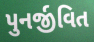
પુનર્જીવિત